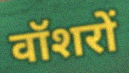
वॉशरों